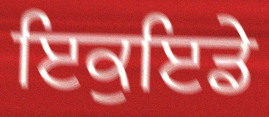
ਇਕੁਇਡੇ